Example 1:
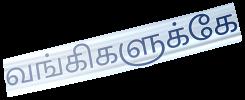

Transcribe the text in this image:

வங்கிகளுக்கே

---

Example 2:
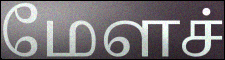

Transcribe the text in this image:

மேளச்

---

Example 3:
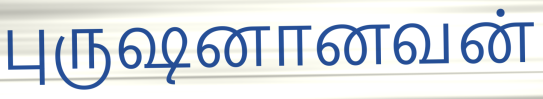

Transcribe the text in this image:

புருஷனானவன்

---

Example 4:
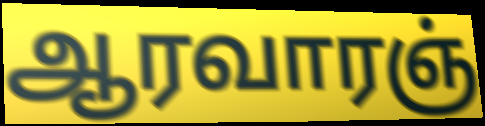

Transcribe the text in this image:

ஆரவாரஞ்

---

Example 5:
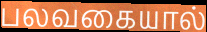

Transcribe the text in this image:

பலவகையால்